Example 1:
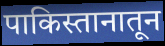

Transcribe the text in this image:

पाकिस्तानातून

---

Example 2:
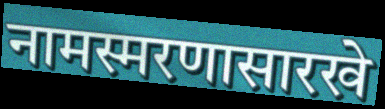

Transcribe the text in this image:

नामस्मरणासारखे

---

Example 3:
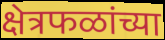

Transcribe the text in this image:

क्षेत्रफळांच्या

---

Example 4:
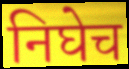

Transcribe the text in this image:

निघेच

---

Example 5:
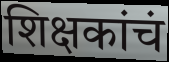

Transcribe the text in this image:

शिक्षकांचं